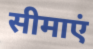
सीमाएं